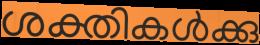
ശക്തികൾക്കു